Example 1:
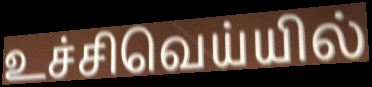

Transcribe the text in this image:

உச்சிவெய்யில்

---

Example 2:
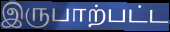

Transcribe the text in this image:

இருபாற்பட்ட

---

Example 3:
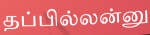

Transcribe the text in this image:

தப்பில்லன்னு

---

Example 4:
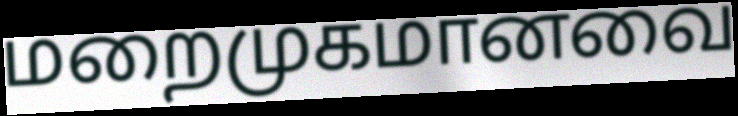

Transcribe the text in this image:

மறைமுகமானவை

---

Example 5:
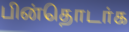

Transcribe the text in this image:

பின்தொடர்க